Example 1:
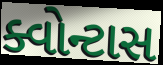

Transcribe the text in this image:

ક્વોન્ટાસ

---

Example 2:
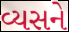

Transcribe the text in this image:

વ્યસને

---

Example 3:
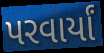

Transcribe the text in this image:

પરવાર્યાં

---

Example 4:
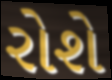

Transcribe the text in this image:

રોશે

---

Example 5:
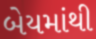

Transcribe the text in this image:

બેયમાંથી